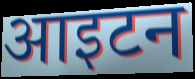
आइटन